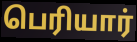
பெரியார்